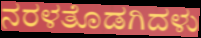
ನರಳತೊಡಗಿದಳು